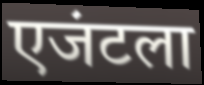
एजंटला